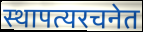
स्थापत्यरचनेत